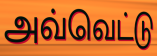
அவ்வெட்டு